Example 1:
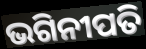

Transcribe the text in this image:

ଭଗିନୀପତି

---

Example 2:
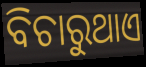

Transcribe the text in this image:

ବିଚାରୁଥାଏ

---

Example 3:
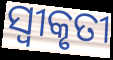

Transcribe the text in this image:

ସ୍ୱୀକୃତୀ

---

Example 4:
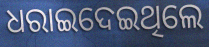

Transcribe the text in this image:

ଧରାଇଦେଇଥିଲେ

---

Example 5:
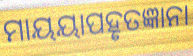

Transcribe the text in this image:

ମାୟୟାପହୃତଜ୍ଞାନା